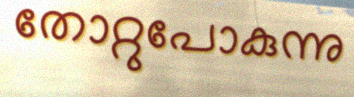
തോറ്റുപോകുന്നു